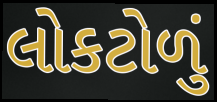
લોકટોળું